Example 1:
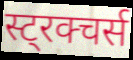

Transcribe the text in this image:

स्ट्रक्चर्स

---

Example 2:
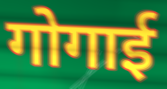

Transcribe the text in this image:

गोगाई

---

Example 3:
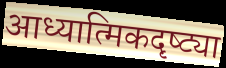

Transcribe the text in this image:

आध्यात्मिकदृष्ट्या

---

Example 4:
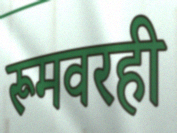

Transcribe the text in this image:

रूमवरही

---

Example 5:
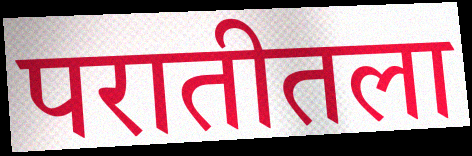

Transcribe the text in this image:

परातीतला